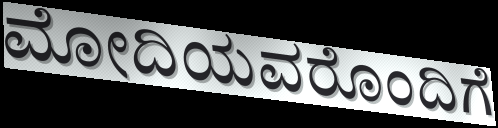
ಮೋದಿಯವರೊಂದಿಗೆ